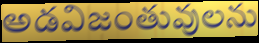
అడవిజంతువులను